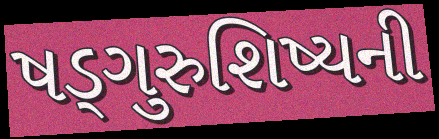
ષડ્ગુરુશિષ્યની